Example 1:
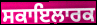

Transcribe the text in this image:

ਸਕਾਇਲਾਰਕ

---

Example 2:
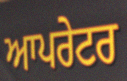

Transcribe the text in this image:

ਆਪਰੇਟਰ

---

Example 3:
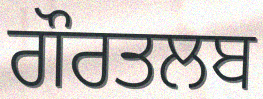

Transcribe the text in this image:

ਗੌਰਤਲਬ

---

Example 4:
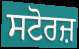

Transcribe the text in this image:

ਸਟੋਰਜ਼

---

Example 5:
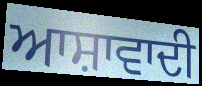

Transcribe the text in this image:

ਆਸ਼ਾਵਾਦੀ